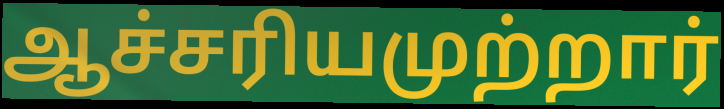
ஆச்சரியமுற்றார்